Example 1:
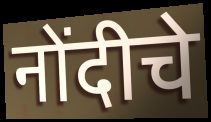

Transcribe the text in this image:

नोंदीचे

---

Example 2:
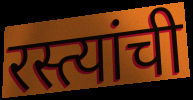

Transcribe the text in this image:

रस्त्यांची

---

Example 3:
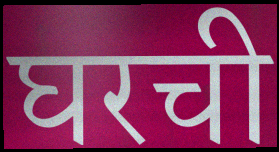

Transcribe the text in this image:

घरची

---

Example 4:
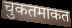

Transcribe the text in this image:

चुकतमाकत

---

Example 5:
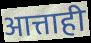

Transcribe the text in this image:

आत्ताही